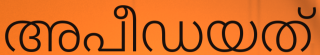
അപീഡയത്